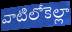
వాటిలోకెల్లా